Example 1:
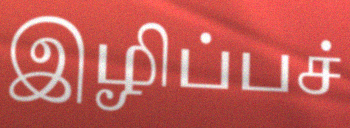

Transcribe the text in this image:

இழிப்பச்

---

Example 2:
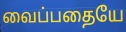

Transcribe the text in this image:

வைப்பதையே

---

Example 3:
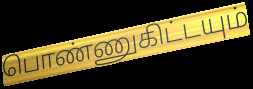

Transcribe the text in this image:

பொண்ணுகிட்டயும்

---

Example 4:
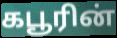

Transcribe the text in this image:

கபூரின்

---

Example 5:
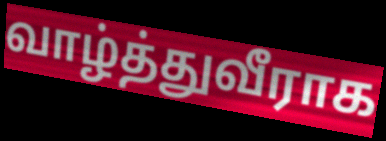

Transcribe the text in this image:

வாழ்த்துவீராக